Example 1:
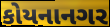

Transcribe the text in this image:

કોયનાનગર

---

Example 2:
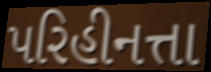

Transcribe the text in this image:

પરિહીનત્તા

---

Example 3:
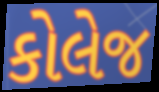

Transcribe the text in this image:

કોલેજ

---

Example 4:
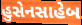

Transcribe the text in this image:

હુસેનસાહેબ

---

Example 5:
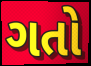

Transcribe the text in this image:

ગતો